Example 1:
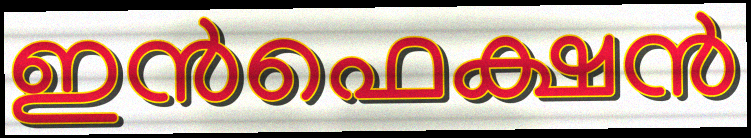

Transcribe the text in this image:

ഇൻഫെക്ഷൻ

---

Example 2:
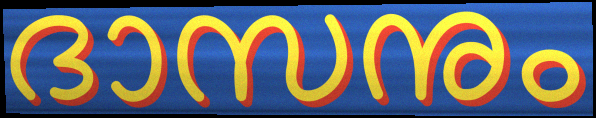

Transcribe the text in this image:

ദാസനും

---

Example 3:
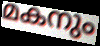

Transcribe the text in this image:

മകനും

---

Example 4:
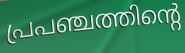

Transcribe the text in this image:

പ്രപഞ്ചത്തിന്റെ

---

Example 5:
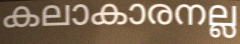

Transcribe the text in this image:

കലാകാരനല്ല